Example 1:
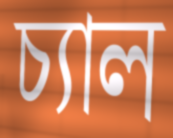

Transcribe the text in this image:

চ্যাল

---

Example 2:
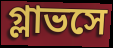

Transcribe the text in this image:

গ্লাভসে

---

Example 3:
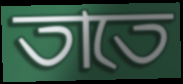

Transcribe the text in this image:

তাতে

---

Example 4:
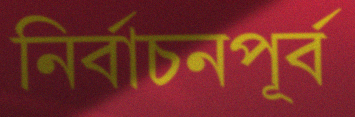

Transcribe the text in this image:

নির্বাচনপূর্ব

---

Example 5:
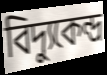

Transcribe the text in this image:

বিদ্যুকেন্দ্র